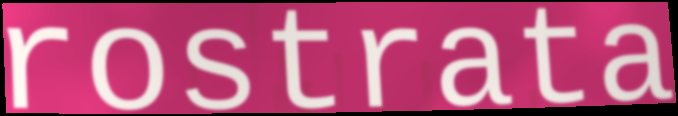
rostrata